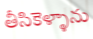
తీసికెళ్ళాను